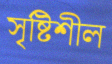
সৃষ্টিশীল